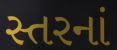
સ્તરનાં